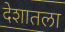
देशातला